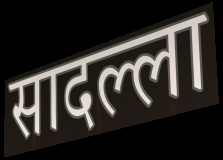
सादल्ला